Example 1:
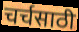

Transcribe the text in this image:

चर्चसाठी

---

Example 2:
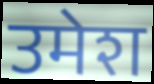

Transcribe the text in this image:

उमेश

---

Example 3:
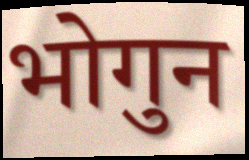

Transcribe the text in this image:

भोगुन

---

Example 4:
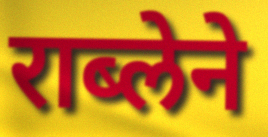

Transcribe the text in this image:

राब्लेने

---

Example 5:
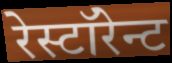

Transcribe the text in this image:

रेस्टॉरेन्ट